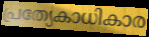
പ്രത്യേകാധികാര